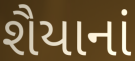
શૈયાનાં